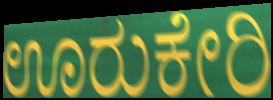
ಊರುಕೇರಿ